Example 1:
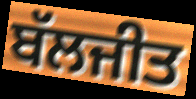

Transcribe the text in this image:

ਬੱਲਜੀਤ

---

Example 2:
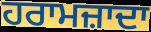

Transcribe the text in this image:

ਹਰਾਮਜ਼ਾਦਾ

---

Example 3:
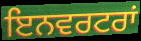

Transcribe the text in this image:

ਇਨਵਰਟਰਾਂ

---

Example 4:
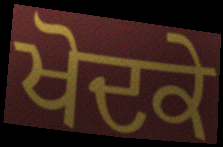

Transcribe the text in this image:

ਖੋਦਕੇ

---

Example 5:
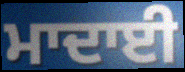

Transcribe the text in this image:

ਮਾਦਾਈ